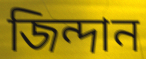
জিন্দান